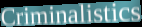
Criminalistics